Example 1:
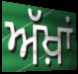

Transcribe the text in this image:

ਅੱਖ਼ਾਂ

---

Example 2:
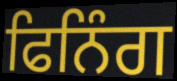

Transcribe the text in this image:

ਫਿਨਿੰਗ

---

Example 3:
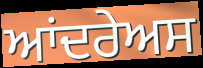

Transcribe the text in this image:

ਆਂਦਰੇਅਸ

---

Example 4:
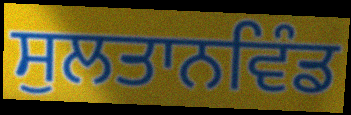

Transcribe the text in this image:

ਸੁਲਤਾਨਵਿੰਡ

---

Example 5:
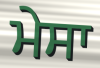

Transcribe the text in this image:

ਮੇਸਾ